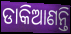
ଡାକିଆଣନ୍ତି